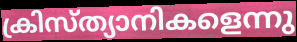
ക്രിസ്ത്യാനികളെന്നു